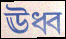
ঊধ্ব